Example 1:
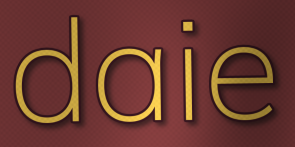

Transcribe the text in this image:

daie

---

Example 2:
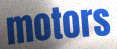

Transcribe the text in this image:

motors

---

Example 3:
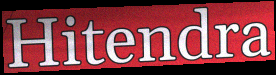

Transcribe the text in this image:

Hitendra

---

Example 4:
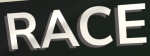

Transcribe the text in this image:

RACE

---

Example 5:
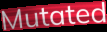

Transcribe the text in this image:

Mutated